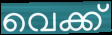
വെക്ക്